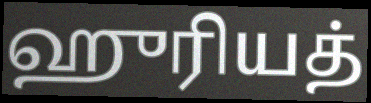
ஹுரியத்